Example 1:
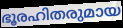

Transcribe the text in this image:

ഭൂരഹിതരുമായ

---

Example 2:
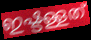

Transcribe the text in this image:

ഇഷ്ടള്ളത്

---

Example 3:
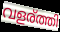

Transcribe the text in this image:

വളര്ത്തി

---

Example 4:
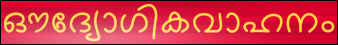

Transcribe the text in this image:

ഔദ്യോഗികവാഹനം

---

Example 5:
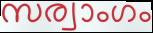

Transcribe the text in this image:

സര്വാംഗം